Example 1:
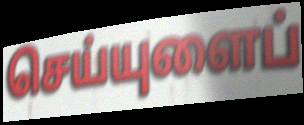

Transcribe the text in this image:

செய்யுளைப்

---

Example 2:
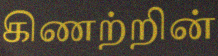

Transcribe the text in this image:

கிணற்றின்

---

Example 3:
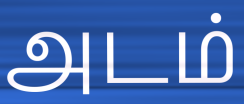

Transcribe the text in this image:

அடம்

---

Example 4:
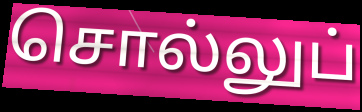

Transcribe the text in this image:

சொல்லுப்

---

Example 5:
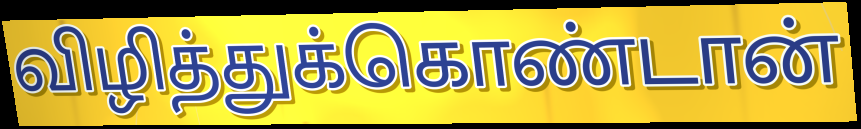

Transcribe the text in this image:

விழித்துக்கொண்டான்